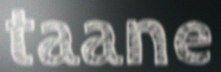
taane